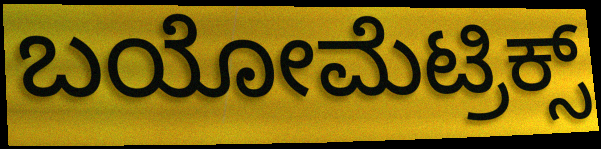
ಬಯೋಮೆಟ್ರಿಕ್ಸ್